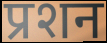
प्रशन